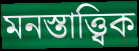
মনস্তাত্ত্বিক